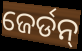
ଜେର୍ଡନ୍